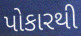
પોકારથી